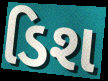
ડિશ